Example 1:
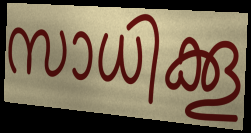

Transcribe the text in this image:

സാധിക്കൂ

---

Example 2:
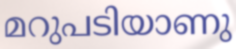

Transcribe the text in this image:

മറുപടിയാണു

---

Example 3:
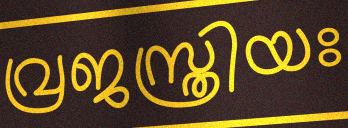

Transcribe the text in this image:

വ്രജസ്ത്രിയഃ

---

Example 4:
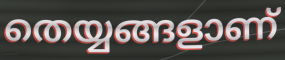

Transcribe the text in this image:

തെയ്യങ്ങളാണ്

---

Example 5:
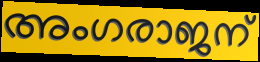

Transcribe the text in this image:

അംഗരാജന്